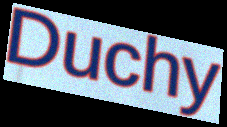
Duchy